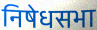
निषेधसभा